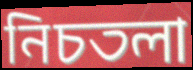
নিচতলা